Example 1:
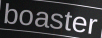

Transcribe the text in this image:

boaster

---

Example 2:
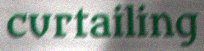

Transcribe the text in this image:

curtailing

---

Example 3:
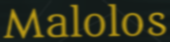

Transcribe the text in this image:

Malolos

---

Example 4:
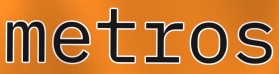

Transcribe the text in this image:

metros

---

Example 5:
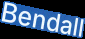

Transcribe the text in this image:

Bendall